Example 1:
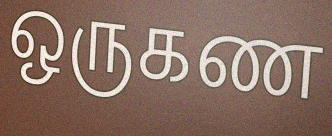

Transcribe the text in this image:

ஒருகண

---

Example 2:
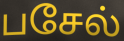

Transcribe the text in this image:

பசேல்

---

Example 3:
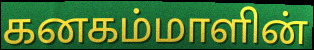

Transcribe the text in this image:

கனகம்மாளின்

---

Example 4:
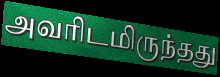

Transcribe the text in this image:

அவரிடமிருந்தது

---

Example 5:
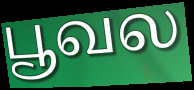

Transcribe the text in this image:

பூவல